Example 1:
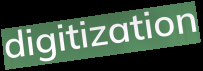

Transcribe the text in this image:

digitization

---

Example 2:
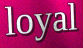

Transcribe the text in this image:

loyal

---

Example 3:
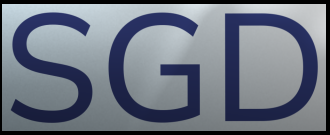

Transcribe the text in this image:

SGD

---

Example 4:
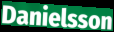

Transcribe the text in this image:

Danielsson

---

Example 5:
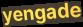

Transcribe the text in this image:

yengade